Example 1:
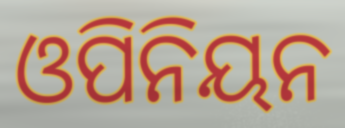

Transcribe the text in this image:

ଓପିନିୟନ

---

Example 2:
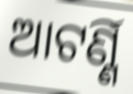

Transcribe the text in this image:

ଆଟର୍ଣ୍ଣି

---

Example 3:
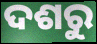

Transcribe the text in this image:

ଦଶରୁ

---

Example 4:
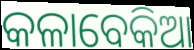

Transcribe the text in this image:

କଳାବେକିଆ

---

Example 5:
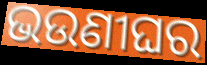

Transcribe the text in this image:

ଭଉଣୀଘର